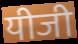
यीजी